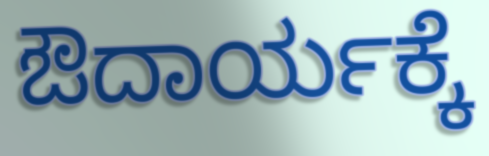
ಔದಾರ್ಯಕ್ಕೆ